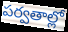
పర్వతాల్లో